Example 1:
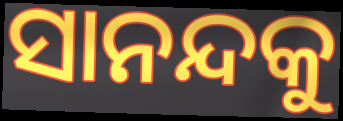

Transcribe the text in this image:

ସାନନ୍ଦକୁ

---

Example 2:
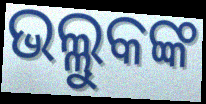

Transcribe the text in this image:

ଭଲ୍ଲୁକଙ୍କ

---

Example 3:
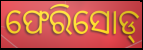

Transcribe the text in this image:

ଫେରିସୋଡ୍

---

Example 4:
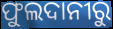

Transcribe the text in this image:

ଫୁଲଦାନୀରୁ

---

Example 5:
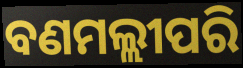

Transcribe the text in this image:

ବଣମଲ୍ଲୀପରି